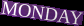
MONDAY